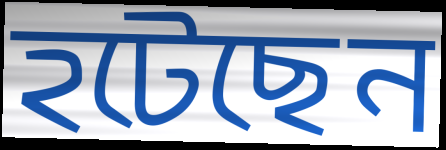
হটেছেন